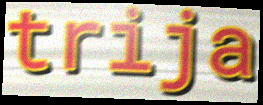
trija